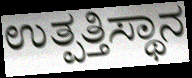
ಉತ್ಪತ್ತಿಸ್ಥಾನ